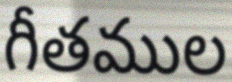
గీతముల